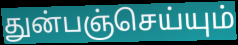
துன்பஞ்செய்யும்